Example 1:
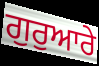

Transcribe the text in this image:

ਗੁਰੁਆਰੇ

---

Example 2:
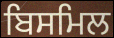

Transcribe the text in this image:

ਬਿਸਮਿਲ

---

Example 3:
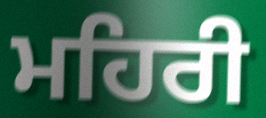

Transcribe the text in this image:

ਮਹਿਰੀ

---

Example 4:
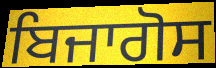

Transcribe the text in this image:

ਬਿਜਾਗੋਸ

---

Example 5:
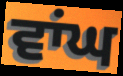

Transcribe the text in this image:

ਵਾਂਘ